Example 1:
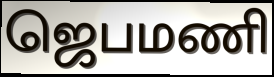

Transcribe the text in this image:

ஜெபமணி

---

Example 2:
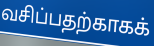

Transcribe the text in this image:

வசிப்பதற்காகக்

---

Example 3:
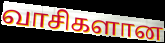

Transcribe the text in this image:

வாசிகளான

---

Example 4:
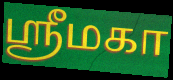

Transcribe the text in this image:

ஸ்ரீமகா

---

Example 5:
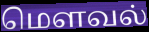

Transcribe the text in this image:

மௌவல்